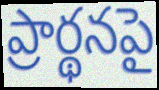
ప్రార్థనపై